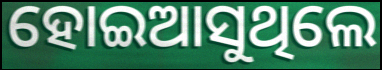
ହୋଇଆସୁଥିଲେ